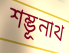
শম্ভূনাথ